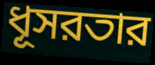
ধূসরতার